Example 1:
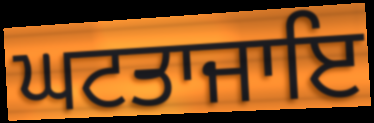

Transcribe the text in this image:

ਘਟਤਾਜਾਇ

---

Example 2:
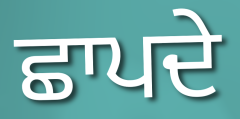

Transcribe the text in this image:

ਛਾਪਦੇ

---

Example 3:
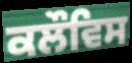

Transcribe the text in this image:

ਕਲੌਵਿਸ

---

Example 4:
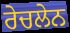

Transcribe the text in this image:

ਰੇਚਲੇਨ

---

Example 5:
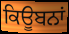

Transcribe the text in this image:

ਕਿਊਬਨਾਂ